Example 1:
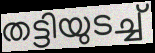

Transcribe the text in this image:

തട്ടിയുടച്ച്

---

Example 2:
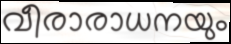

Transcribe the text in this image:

വീരാരാധനയും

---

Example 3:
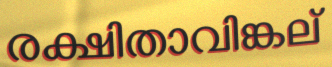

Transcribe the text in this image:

രക്ഷിതാവിങ്കല്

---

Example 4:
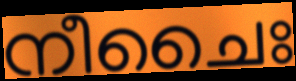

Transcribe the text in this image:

നീചൈഃ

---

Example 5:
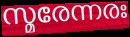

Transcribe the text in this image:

സ്മരേന്നരഃ